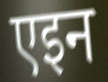
एइन